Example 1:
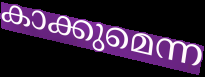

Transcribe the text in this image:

കാക്കുമെന്ന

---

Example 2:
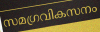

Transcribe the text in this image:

സമഗ്രവികസനം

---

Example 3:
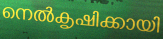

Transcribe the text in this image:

നെൽകൃഷിക്കായി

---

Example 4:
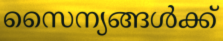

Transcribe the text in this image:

സൈന്യങ്ങൾക്ക്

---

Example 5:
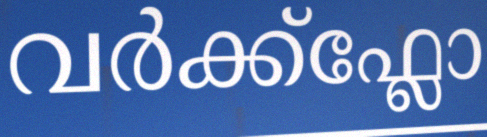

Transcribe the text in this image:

വർക്ക്ഫ്ലോ